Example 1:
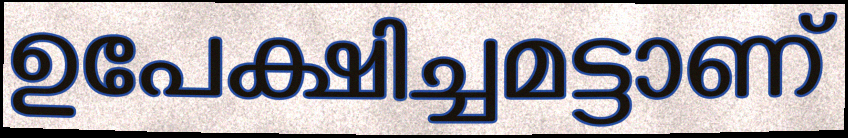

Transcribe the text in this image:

ഉപേക്ഷിച്ചമട്ടാണ്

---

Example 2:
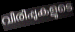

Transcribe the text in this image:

വിരിപ്പുകളുടെ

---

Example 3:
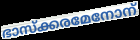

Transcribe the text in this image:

ഭാസ്ക്കരമേനോന്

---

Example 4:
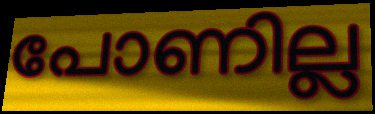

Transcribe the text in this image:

പോണില്ല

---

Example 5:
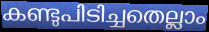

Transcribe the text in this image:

കണ്ടുപിടിച്ചതെല്ലാം